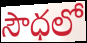
సౌధలో